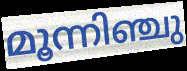
മൂന്നിഞ്ചു